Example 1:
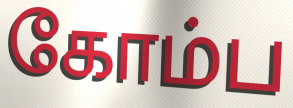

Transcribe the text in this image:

கோம்ப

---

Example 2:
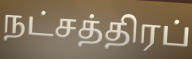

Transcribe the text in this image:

நட்சத்திரப்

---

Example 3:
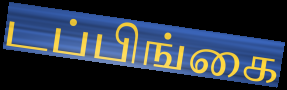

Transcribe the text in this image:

டப்பிங்கை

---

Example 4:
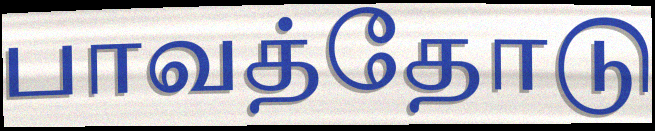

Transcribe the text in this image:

பாவத்தோடு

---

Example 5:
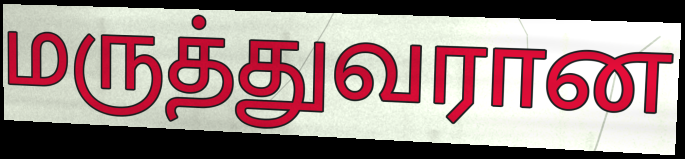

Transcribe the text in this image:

மருத்துவரான